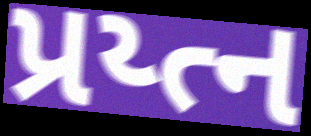
પ્રય્ત્ન